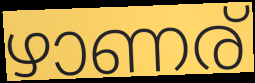
ഴാണര്